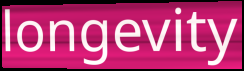
longevity